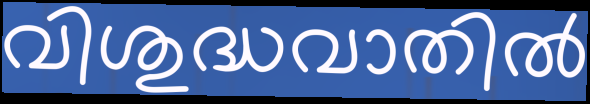
വിശുദ്ധവാതിൽ